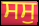
ਸਸੁ